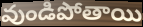
వుండిపోతాయి